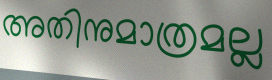
അതിനുമാത്രമല്ല